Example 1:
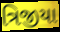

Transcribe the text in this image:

ત્રિજીયા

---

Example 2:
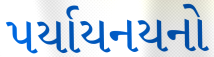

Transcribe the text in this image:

પર્યાયનયનો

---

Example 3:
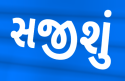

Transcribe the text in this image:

સજીશું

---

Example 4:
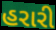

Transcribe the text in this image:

હરારી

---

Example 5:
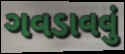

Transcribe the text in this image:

ગવડાવવું